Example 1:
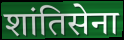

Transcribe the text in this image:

शांतिसेना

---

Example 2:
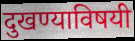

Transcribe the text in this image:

दुखण्याविषयी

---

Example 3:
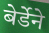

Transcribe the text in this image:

बेर्डेने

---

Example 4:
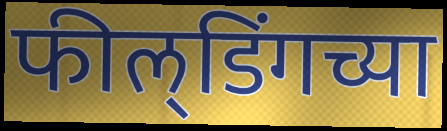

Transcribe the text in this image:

फील्डिंगच्या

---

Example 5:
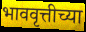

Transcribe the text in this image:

भाववृत्तीच्या